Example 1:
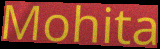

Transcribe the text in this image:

Mohita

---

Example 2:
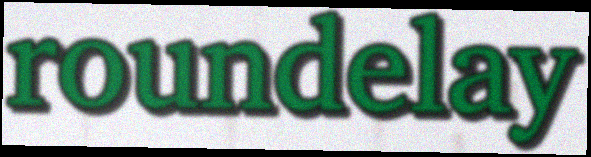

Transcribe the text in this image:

roundelay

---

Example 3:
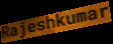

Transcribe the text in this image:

Rajeshkumar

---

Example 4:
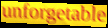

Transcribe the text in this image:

unforgetable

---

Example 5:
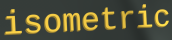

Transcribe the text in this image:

isometric